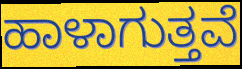
ಹಾಳಾಗುತ್ತವೆ